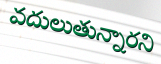
వదులుతున్నారని